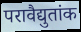
परावैद्युतांक